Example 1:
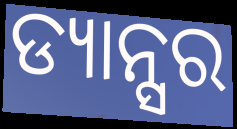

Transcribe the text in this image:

ଡ୍ୟାନ୍ସର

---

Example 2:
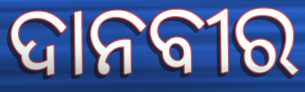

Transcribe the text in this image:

ଦାନବୀର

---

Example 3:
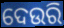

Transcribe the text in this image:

ଦେଉରି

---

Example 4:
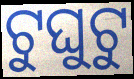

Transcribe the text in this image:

ଟୁଘୁଟୁ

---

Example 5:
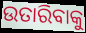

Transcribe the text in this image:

ଉତାରିବାକୁ